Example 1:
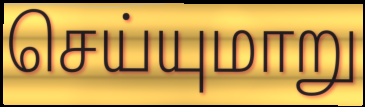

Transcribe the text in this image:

செய்யுமாறு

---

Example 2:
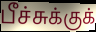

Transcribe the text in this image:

பீச்சுக்குக்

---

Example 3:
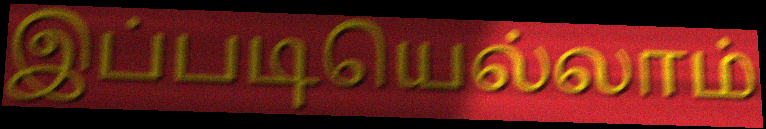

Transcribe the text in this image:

இப்படியெல்லாம்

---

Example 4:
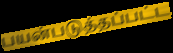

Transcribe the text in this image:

பயன்படுத்தப்பட்ட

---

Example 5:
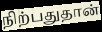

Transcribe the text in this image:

நிற்பதுதான்